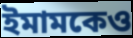
ইমামকেও